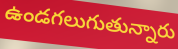
ఉండగలుగుతున్నారు